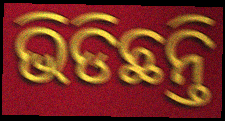
ଭିଡିଛନ୍ତି